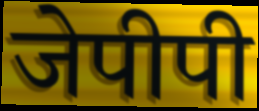
जेपीपी